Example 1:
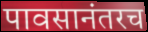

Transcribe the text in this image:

पावसानंतरच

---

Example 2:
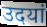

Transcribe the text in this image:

उदयां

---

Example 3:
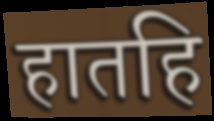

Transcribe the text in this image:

हातहि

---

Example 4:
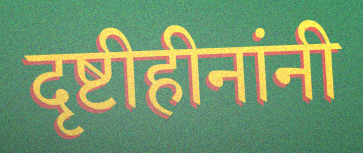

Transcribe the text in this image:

दृष्टीहीनांनी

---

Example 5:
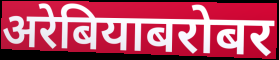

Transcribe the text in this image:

अरेबियाबरोबर